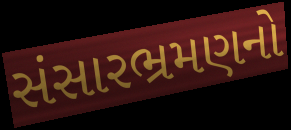
સંસારભ્રમણનો